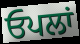
ਓਪਲਾਂ